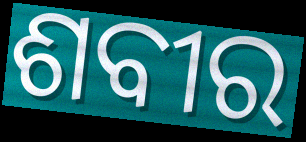
ଶବୀର